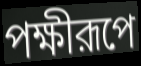
পক্ষীরূপে